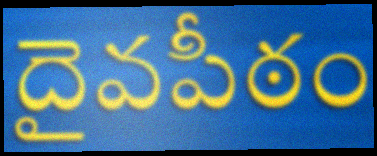
దైవపీఠం